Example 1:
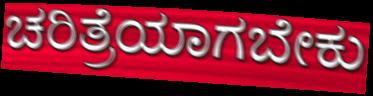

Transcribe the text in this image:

ಚರಿತ್ರೆಯಾಗಬೇಕು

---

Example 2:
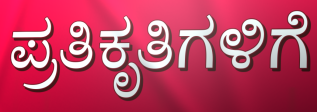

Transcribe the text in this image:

ಪ್ರತಿಕೃತಿಗಳಿಗೆ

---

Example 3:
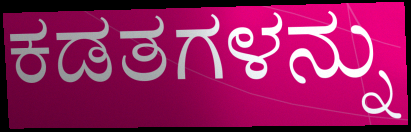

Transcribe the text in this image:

ಕಡತಗಳನ್ನು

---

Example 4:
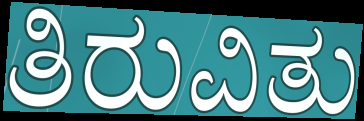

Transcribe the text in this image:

ತಿರುವಿತು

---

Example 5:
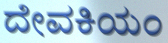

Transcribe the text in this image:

ದೇವಕಿಯಂ